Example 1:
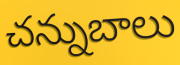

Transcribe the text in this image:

చన్నుబాలు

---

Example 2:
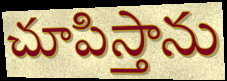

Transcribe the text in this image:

చూపిస్తాను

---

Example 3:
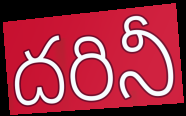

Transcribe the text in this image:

దరినీ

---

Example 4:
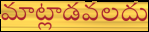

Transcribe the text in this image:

మాట్లాడవలదు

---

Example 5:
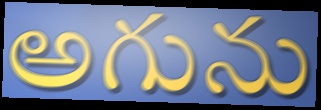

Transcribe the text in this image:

అగును